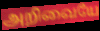
அறிவையே